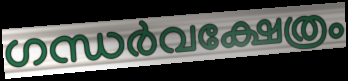
ഗന്ധർവക്ഷേത്രം